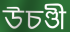
উচণ্ডী